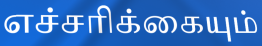
எச்சரிக்கையும்